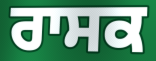
ਰਾਸਕ